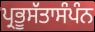
ਪ੍ਰਭੂਸੱਤਾਸੰਪੰਨ